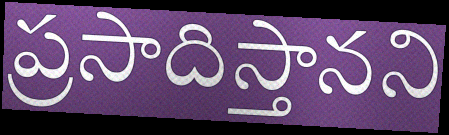
ప్రసాదిస్తానని